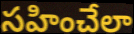
సహించేలా